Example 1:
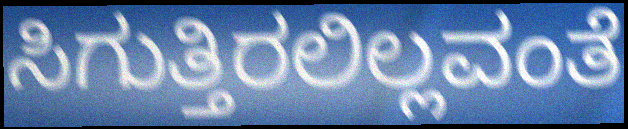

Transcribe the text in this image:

ಸಿಗುತ್ತಿರಲಿಲ್ಲವಂತೆ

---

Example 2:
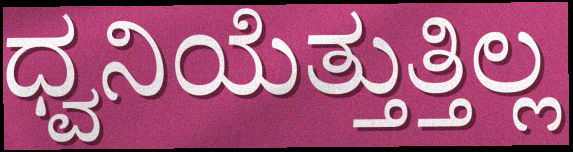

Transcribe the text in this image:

ಧ್ವನಿಯೆತ್ತುತ್ತಿಲ್ಲ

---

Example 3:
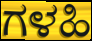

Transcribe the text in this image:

ಗಳಹಿ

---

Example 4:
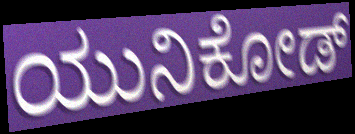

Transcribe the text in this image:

ಯುನಿಕೋಡ್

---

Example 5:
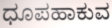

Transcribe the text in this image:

ಧೂಪಹಾಕುವ